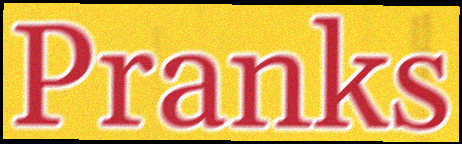
Pranks